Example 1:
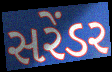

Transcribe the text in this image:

સરેંડર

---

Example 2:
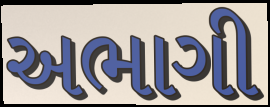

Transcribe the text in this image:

અભાગી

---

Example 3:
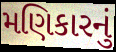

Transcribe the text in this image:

મણિકારનું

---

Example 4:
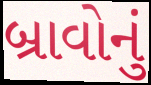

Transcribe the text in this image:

બ્રાવોનું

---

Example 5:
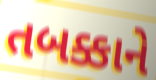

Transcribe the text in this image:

તબક્કાને